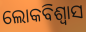
ଲୋକବିଶ୍ୱାସ